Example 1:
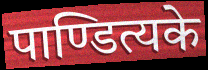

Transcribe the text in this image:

पाण्डित्यके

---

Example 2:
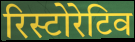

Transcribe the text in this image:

रिस्टोरेटिव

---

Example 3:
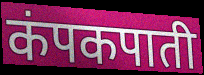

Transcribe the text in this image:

कंपकपाती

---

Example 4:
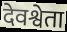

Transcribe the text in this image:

देवश्वेता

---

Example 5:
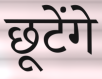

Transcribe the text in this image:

छूटेंगे